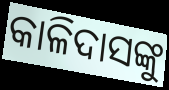
କାଳିଦାସଙ୍କୁ